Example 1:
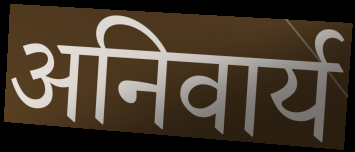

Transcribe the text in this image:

अनिवार्य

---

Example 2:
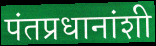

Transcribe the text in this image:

पंतप्रधानांशी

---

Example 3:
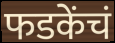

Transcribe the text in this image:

फडकेंचं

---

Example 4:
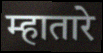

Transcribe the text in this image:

म्हातारे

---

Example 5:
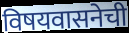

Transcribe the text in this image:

विषयवासनेची